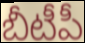
బీటీపీ